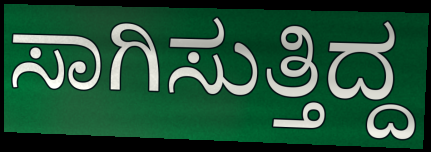
ಸಾಗಿಸುತ್ತಿದ್ದ